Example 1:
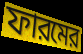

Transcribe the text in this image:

ফারমের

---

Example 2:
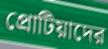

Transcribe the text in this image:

প্রোটিয়াদের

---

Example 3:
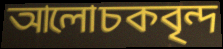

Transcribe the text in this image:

আলোচকবৃন্দ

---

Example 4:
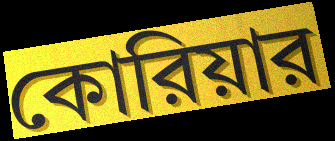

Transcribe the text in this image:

কোরিয়ার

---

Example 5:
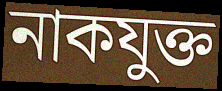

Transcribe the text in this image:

নাকযুক্ত